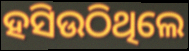
ହସିଉଠିଥିଲେ